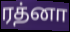
ரத்னா